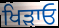
ਖਿੜਾਓ